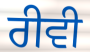
ਰੀਵੀ